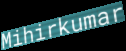
Mihirkumar